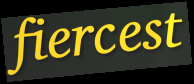
fiercest